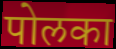
पोलका